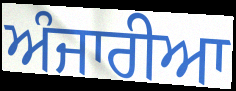
ਅੰਜਾਰੀਆ